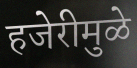
हजेरीमुळे